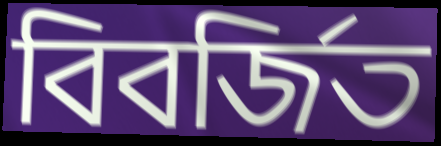
বিবর্জিত